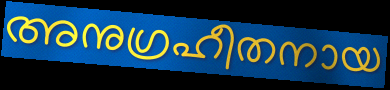
അനുഗ്രഹീതനായ